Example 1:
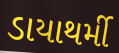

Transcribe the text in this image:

ડાયાથર્મી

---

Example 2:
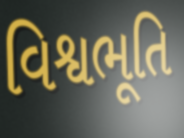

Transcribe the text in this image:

વિશ્વભૂતિ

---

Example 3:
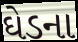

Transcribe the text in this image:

ઘેડના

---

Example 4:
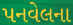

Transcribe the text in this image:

પનવેલના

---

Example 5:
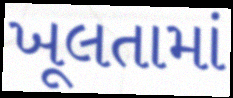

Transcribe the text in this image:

ખૂલતામાં